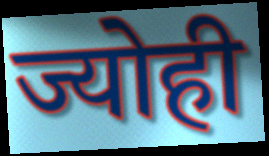
ज्योही